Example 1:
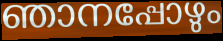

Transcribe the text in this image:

ഞാനപ്പോഴും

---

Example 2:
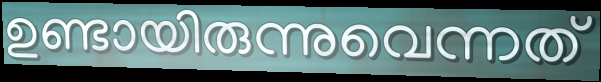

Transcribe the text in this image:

ഉണ്ടായിരുന്നുവെന്നത്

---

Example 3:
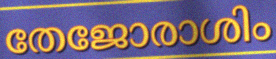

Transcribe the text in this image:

തേജോരാശിം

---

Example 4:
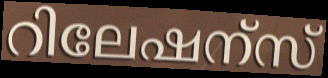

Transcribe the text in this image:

റിലേഷന്സ്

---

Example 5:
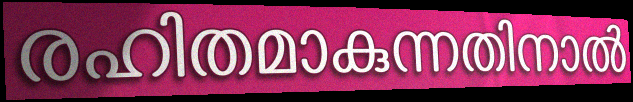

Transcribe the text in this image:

രഹിതമാകുന്നതിനാൽ